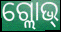
ଗ୍ଲୋଭ୍